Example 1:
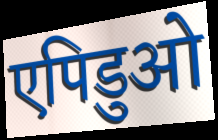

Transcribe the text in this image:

एपिडुओ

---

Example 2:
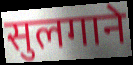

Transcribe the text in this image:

सुलगाने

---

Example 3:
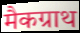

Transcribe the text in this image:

मैकग्राथ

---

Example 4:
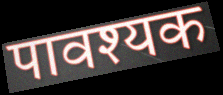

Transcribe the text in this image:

पावश्यक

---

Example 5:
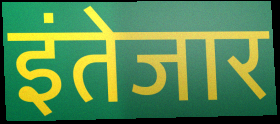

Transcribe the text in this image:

इंतेजार